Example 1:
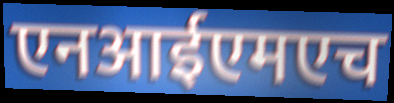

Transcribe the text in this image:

एनआईएमएच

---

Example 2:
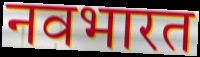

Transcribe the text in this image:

नवभारत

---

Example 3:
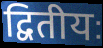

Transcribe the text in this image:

द्वितीयः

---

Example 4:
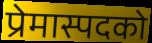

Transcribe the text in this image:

प्रेमास्पदको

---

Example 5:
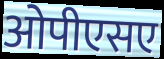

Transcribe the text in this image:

ओपीएसए